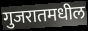
गुजरातमधील